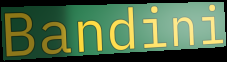
Bandini